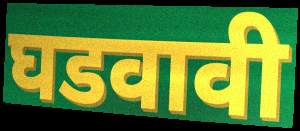
घडवावी